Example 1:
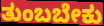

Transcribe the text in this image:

ತುಂಬಬೇಕು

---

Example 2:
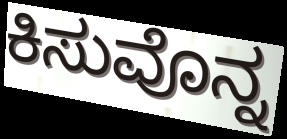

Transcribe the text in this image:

ಕಿಸುವೊನ್ನ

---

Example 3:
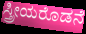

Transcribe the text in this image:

ಸ್ತ್ರೀಯರೊಡನೆ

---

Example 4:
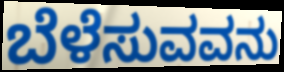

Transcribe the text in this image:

ಬೆಳೆಸುವವನು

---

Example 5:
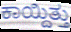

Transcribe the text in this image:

ಕಾಯ್ದಿತ್ತು